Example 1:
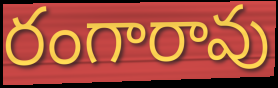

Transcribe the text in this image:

రంగారావు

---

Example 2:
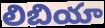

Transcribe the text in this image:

లిబియా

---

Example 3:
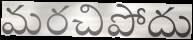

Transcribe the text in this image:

మరచిపోదు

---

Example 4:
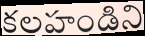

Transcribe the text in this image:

కలహండిని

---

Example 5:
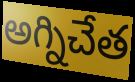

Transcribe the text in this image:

అగ్నిచేత